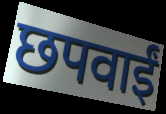
छपवाईं